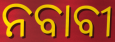
ନବାବୀ